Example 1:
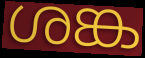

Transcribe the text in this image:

ശങ്ക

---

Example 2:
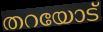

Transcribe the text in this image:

തറയോട്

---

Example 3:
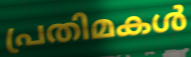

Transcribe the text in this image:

പ്രതിമകൾ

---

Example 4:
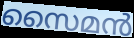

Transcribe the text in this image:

സൈമൻ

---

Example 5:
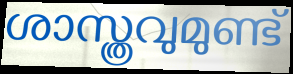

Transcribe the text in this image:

ശാസ്ത്രവുമുണ്ട്